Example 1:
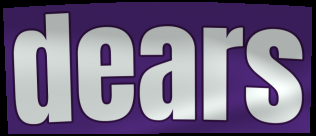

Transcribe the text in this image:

dears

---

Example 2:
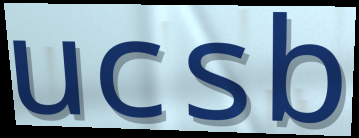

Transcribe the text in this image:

ucsb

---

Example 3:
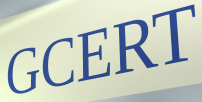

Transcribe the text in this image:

GCERT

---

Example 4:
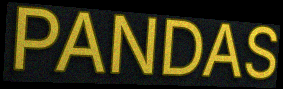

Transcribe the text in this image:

PANDAS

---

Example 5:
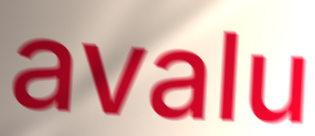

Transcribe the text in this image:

avalu